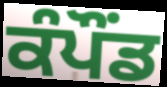
ਕੰਪੌਂਡ